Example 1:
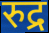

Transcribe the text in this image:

रुद्र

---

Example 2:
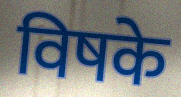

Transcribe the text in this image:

विषके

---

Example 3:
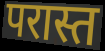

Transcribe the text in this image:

परास्त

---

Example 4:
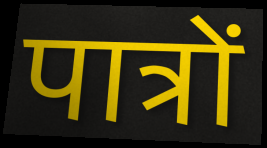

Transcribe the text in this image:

पात्रों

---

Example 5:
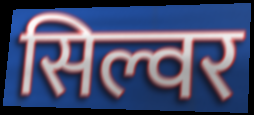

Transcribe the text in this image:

सिल्‍वर